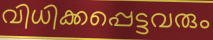
വിധിക്കപ്പെട്ടവരും